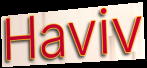
Haviv